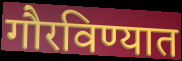
गौरविण्यात